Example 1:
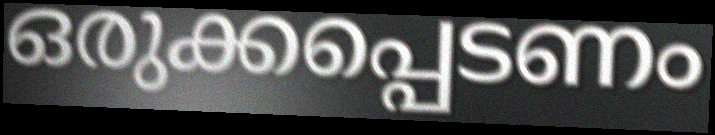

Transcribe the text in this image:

ഒരുക്കപ്പെടണം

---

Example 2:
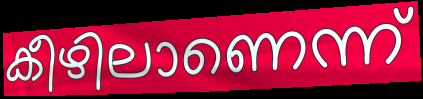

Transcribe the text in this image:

കീഴിലാണെന്ന്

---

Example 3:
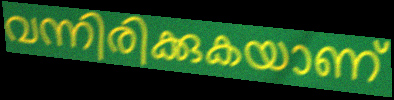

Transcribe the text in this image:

വന്നിരിക്കുകയാണ്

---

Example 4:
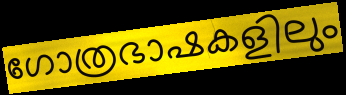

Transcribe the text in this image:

ഗോത്രഭാഷകളിലും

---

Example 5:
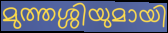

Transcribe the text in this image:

മുത്തശ്ശിയുമായി